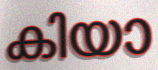
കിയാ